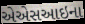
એએસઆઇના